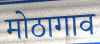
मोठागाव